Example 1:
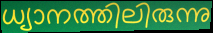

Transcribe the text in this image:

ധ്യാനത്തിലിരുന്നു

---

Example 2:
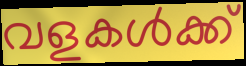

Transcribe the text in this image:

വളകൾക്ക്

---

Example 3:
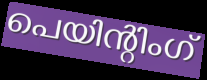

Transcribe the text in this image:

പെയിന്റിംഗ്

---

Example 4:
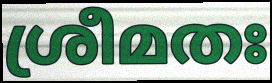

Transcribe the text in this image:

ശ്രീമതഃ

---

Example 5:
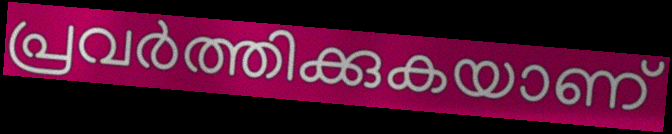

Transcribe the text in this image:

പ്രവർത്തിക്കുകയാണ്